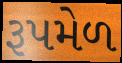
રૂપમેળ